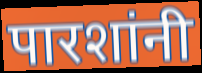
पारशांनी